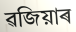
ৱজিয়াৰ